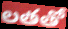
లతతో